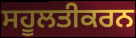
ਸਹੂਲਤੀਕਰਨ